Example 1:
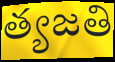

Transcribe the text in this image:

త్యజతి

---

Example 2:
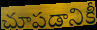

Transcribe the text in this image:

చూపడానికీ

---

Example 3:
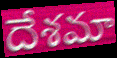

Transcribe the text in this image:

దేశమా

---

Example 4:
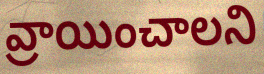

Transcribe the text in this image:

వ్రాయించాలని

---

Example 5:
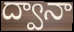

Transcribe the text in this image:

ద్వానా